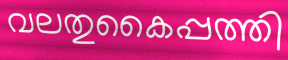
വലതുകൈപ്പത്തി